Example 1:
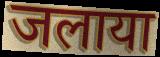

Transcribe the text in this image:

जलाया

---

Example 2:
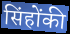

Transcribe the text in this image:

सिंहोंकी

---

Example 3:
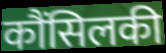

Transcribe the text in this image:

कौंसिलकी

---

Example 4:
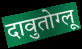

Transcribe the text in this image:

दावुतोग्लू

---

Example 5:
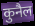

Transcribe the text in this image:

कुनैल